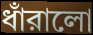
ধাঁরালো